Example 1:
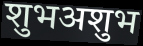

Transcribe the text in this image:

शुभअशुभ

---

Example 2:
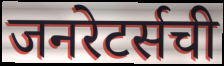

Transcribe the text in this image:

जनरेटर्सची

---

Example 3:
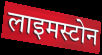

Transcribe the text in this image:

लाइमस्टोन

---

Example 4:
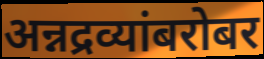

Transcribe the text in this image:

अन्नद्रव्यांबरोबर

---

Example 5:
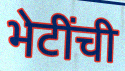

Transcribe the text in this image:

भेटींची